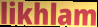
likhlam